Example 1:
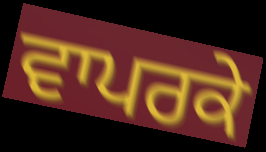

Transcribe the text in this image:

ਵਾਪਰਕੇ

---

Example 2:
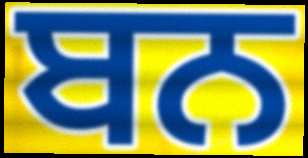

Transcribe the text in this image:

ਬਨ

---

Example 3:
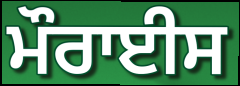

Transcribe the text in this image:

ਮੌਰਾਈਸ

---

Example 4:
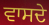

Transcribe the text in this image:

ਵਾਸਦੇ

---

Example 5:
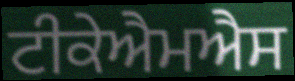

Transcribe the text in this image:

ਟੀਕੇਐਮਐਸ